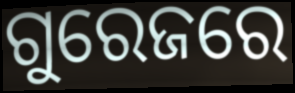
ଗୁରେଜରେ